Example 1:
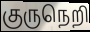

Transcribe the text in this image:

குருநெறி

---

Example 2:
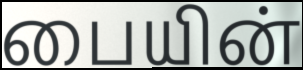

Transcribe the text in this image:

பையின்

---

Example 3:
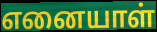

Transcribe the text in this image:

எனையாள்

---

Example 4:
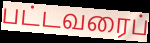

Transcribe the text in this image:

பட்டவரைப்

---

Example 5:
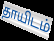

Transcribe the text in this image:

தாயிடம்